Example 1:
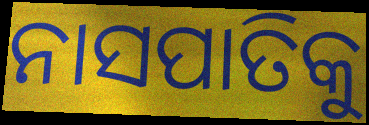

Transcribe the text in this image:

ନାସପାତିକୁ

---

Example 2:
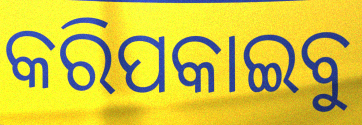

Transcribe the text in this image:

କରିପକାଇବୁ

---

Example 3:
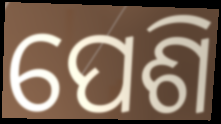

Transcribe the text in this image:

ପେଶି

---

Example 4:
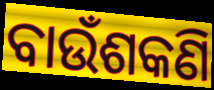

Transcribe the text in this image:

ବାଉଁଶକଣି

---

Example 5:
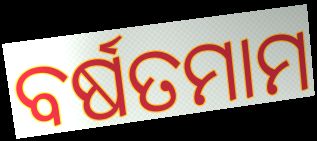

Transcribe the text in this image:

ବର୍ଷତମାମ